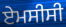
ਏਮਸੀਸੀ